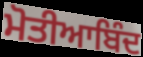
ਮੋਤੀਆਬਿੰਦ